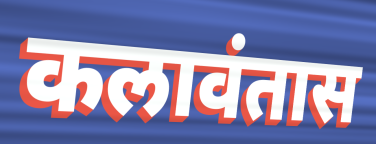
कलावंतास